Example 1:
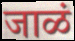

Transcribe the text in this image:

जाळं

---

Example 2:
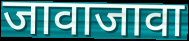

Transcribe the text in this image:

जावाजावा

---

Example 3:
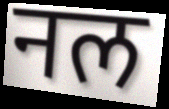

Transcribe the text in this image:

नल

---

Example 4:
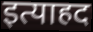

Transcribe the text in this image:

इत्याहद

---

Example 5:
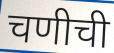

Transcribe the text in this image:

चणीची